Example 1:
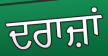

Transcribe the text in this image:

ਦਰਾਜ਼ਾਂ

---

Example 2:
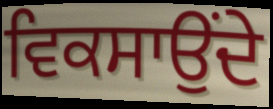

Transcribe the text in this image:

ਵਿਕਸਾਉਂਦੇ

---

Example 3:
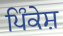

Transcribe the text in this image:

ਪਿੰਕੇਸ਼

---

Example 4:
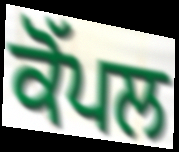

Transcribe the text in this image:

ਕੋੱਪਲ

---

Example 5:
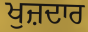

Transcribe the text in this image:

ਖੁਜ਼ਦਾਰ